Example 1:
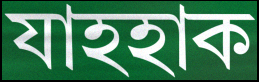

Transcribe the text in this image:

যাহহাক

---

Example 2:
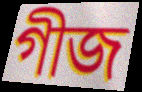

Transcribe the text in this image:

গীজ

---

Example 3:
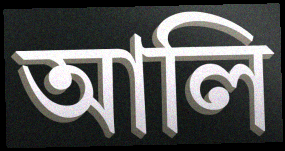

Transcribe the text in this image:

আলি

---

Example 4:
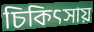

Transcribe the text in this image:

চিকিৎসায়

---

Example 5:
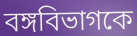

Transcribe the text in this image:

বঙ্গবিভাগকে